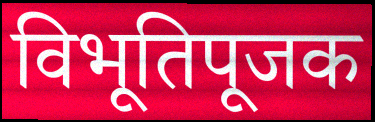
विभूतिपूजक